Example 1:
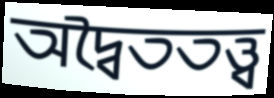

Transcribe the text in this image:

অদ্বৈততত্ত্ব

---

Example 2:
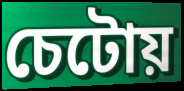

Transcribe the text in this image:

চেটোয়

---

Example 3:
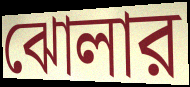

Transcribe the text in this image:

ঝোলার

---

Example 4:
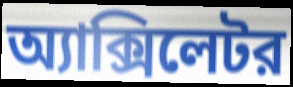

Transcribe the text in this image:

অ্যাক্সিলেটর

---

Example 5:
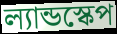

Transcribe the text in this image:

ল্যান্ডস্কেপ